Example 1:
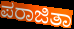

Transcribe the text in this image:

ಪರಾಜಿತಾ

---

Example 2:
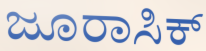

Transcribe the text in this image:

ಜೂರಾಸಿಕ್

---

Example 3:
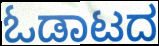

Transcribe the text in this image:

ಓಡಾಟದ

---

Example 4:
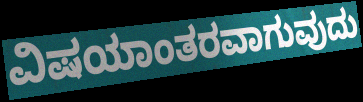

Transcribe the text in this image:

ವಿಷಯಾಂತರವಾಗುವುದು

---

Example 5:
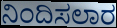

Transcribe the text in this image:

ನಿಂದಿಸಲಾರ